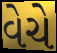
વેચે